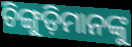
ଚିଙ୍ଗୁଡ଼ିମାନଙ୍କୁ